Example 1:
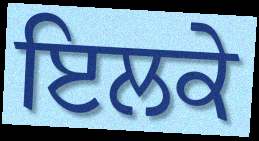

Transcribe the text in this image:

ਇਲਕੇ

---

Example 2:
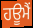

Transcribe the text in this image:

ਹਊਮੈਂ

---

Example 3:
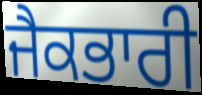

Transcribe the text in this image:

ਜੈਕਭਾਰੀ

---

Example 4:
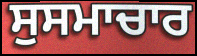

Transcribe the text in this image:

ਸੁਸਮਾਚਾਰ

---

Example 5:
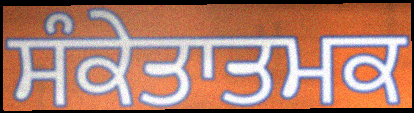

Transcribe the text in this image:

ਸੰਕੇਤਾਤਮਕ